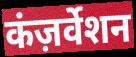
कंज़र्वेशन